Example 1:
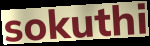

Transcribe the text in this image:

sokuthi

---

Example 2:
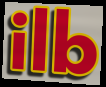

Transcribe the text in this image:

ilb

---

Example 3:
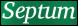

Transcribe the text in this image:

Septum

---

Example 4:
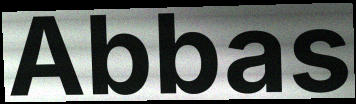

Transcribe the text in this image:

Abbas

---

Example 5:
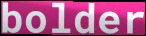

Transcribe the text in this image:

bolder